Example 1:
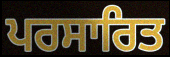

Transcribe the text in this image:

ਪਰਸਾਰਿਤ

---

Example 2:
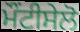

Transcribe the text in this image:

ਮੌਂਟੀਸੇਲੋ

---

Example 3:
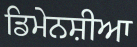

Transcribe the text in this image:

ਡਿਮੇਨਸ਼ੀਆ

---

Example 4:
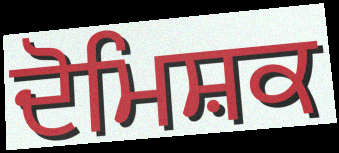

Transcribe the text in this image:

ਦੋਮਿਸ਼ਕ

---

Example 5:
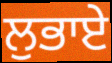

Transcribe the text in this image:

ਲੁਭਾਏ